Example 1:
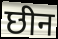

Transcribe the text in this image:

छीन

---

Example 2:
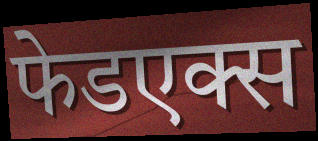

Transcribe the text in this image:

फेडएक्स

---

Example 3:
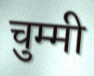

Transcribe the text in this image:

चुम्मी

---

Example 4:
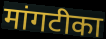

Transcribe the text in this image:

मांगटीका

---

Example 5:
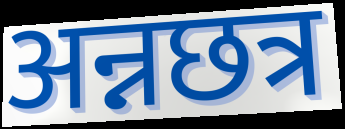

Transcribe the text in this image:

अन्नछत्र